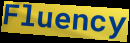
Fluency